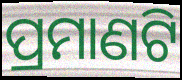
ପ୍ରମାଣଟି